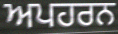
ਅਪਹਰਨ